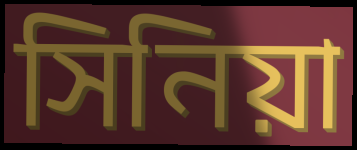
সিনিয়া